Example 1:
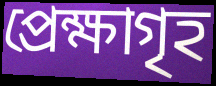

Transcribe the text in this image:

প্ৰেক্ষাগৃহ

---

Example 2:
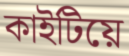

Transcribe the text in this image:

কাইটিয়ে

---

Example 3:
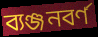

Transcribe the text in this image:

ব্যঞ্জনবৰ্ণ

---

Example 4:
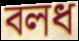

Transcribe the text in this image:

বলধ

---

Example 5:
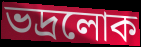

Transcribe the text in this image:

ভদ্ৰলোক